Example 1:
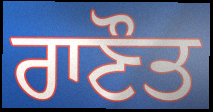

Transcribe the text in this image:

ਰਾਣੌਤ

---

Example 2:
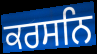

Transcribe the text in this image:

ਕਰਸਨਿ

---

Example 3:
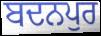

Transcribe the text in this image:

ਬਦਨਪੁਰ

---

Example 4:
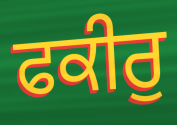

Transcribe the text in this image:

ਫਕੀਰੁ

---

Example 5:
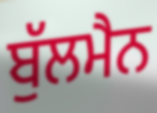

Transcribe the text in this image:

ਬੁੱਲਮੈਨ